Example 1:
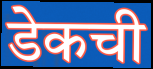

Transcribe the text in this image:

डेकची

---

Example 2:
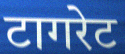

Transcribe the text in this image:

टागरेट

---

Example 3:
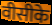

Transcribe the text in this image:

वीसीके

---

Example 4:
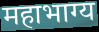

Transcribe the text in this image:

महाभाग्य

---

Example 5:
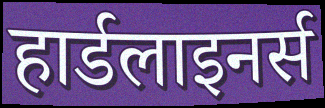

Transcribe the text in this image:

हार्डलाइनर्स